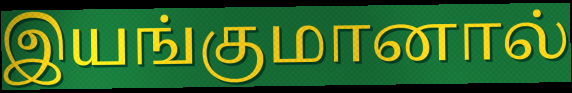
இயங்குமானால்